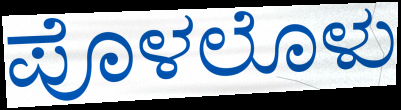
ಪೊಳಲೊಳು